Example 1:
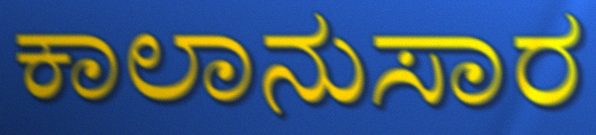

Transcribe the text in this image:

ಕಾಲಾನುಸಾರ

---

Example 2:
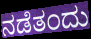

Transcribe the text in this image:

ನಡೆತಂದು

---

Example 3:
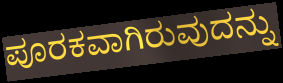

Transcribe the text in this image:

ಪೂರಕವಾಗಿರುವುದನ್ನು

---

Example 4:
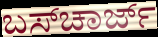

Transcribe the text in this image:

ಬಸ್‌ಚಾರ್ಜ್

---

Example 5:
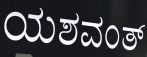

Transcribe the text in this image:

ಯಶವಂತ್